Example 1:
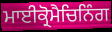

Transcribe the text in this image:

ਮਾਈਕ੍ਰੋਮੈਚਿਨਿੰਗ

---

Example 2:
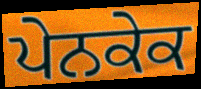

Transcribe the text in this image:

ਪੇਨਕੇਕ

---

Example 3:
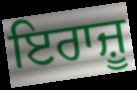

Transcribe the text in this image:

ਇਰਾਜ਼ੂ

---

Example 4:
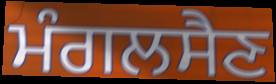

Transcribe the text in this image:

ਮੰਗਲਸੈਣ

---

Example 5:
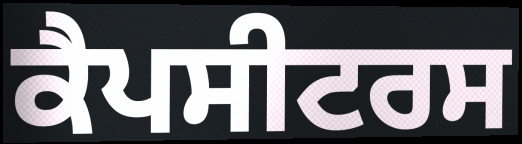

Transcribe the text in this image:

ਕੈਪਸੀਟਰਸ